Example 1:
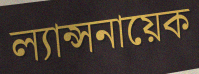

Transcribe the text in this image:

ল্যান্সনায়েক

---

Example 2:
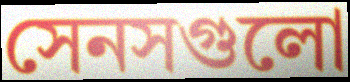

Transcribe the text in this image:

সেনসগুলো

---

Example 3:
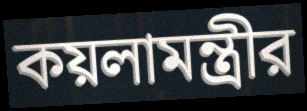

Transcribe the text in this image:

কয়লামন্ত্রীর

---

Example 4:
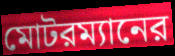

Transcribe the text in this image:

মোটরম্যানের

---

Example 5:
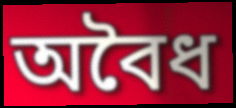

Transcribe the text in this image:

অবৈধ